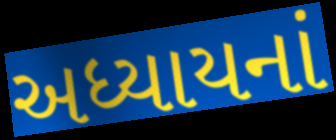
અધ્યાયનાં